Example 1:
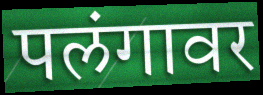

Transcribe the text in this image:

पलंगावर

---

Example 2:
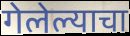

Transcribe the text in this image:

गेलेल्याचा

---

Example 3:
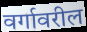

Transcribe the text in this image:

वर्गावरील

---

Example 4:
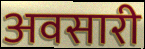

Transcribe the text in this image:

अवसारी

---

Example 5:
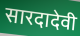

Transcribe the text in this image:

सारदादेवी